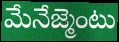
మేనేజ్మెంటు